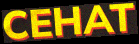
CEHAT